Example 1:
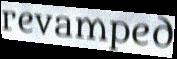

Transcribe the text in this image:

revamped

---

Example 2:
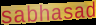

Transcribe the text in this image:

sabhasad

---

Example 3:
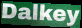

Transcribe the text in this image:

Dalkey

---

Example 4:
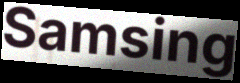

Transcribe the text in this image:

Samsing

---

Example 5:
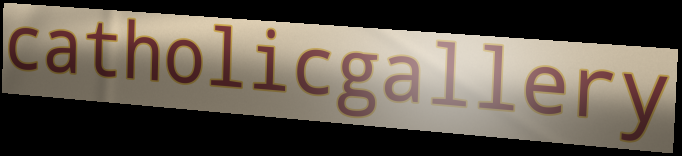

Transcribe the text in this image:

catholicgallery